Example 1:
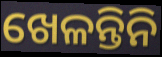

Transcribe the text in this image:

ଖେଳନ୍ତିନି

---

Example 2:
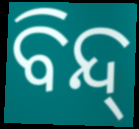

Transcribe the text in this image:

ବିନ୍ଦ୍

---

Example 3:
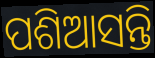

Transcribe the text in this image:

ପଶିଆସନ୍ତି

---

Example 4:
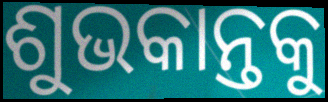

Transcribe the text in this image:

ଶୁଭକାନ୍ତକୁ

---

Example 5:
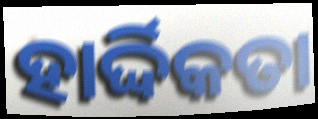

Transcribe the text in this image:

ହାର୍ଦ୍ଦିକତା